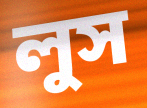
লুস